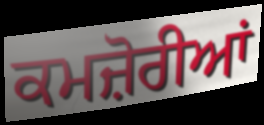
ਕਮਜ਼ੋਰੀਆਂ